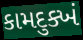
કામદુક્ખં